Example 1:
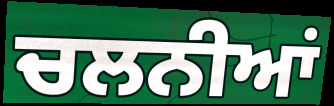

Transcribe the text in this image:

ਚਲਨੀਆਂ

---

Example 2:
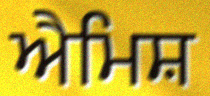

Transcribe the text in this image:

ਐਮਿਸ਼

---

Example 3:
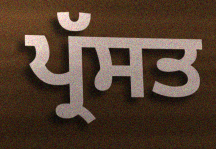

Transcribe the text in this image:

ਪ੍ਰੱਸਤ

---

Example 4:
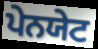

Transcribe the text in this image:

ਪੇਨਯੇਟ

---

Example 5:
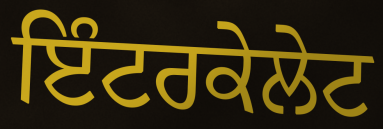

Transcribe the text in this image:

ਇੰਟਰਕੇਲੇਟ